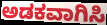
ಅಡಕವಾಗಿಸಿ